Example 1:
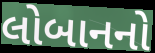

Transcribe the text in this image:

લોબાનનો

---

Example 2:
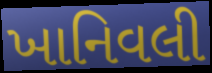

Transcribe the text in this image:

ખાનિવલી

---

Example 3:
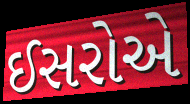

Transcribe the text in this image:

ઈસરોએ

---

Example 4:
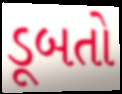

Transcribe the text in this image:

ડૂબતો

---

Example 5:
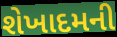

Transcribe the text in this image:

શેખાદમની